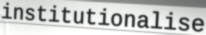
institutionalise